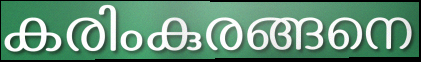
കരിംകുരങ്ങനെ